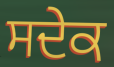
ਸਦੇਕ